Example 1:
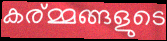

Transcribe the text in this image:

കര്മ്മങ്ങളുടെ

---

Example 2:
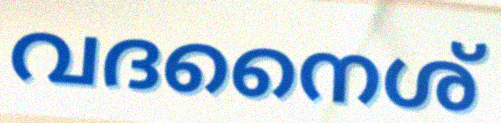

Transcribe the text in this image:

വദനൈശ്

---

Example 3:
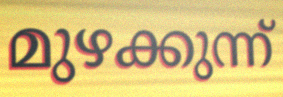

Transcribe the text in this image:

മുഴക്കുന്ന്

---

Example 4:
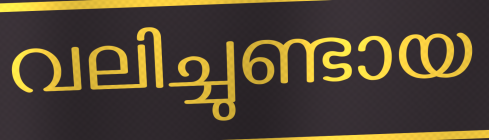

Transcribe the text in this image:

വലിച്ചുണ്ടായ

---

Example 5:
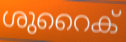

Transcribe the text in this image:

ശുറൈക്